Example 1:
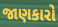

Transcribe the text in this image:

જાણકારો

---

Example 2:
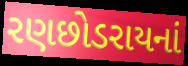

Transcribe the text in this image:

રણછોડરાયનાં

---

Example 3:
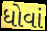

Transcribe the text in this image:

ધોવાં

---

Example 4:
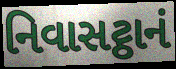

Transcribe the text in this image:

નિવાસટ્ઠાનં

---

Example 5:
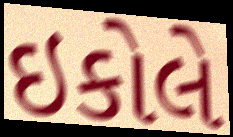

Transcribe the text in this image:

ઇકોલે